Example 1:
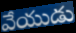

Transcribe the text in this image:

వేయుడు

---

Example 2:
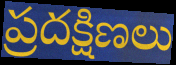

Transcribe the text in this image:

ప్రదక్షిణలు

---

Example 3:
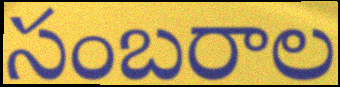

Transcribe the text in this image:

సంబరాల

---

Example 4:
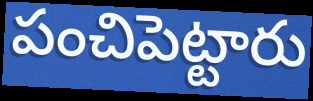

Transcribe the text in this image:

పంచిపెట్టారు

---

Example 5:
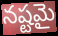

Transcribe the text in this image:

నష్టమై